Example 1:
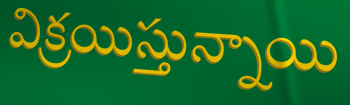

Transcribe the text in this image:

విక్రయిస్తున్నాయి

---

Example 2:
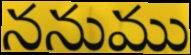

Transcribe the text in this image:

ననుము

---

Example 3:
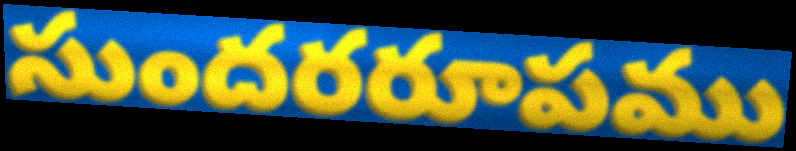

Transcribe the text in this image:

సుందరరూపము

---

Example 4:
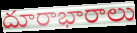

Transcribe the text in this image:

దూరాభారాలు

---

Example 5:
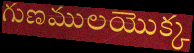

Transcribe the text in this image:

గుణములయొక్క